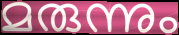
മരുന്നും